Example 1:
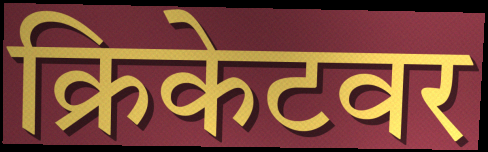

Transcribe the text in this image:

क्रिकेटवर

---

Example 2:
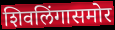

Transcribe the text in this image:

शिवलिंगासमोर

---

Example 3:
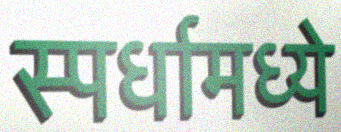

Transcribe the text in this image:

स्पर्धामध्ये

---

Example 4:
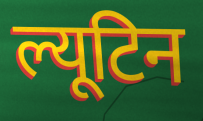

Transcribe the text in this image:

ल्यूटिन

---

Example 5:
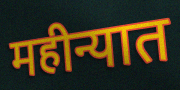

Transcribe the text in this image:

महीन्यात